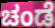
ಚಂಡೆ